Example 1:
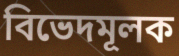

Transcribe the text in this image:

বিভেদমূলক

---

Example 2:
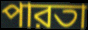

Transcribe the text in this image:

পারতা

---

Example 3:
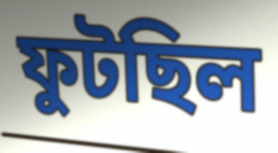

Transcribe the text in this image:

ফুটছিল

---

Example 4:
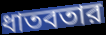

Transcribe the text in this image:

ধাতবতার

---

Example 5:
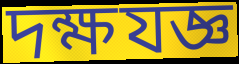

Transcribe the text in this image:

দক্ষযজ্ঞ